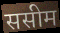
ससीम